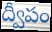
ద్వీపం